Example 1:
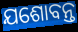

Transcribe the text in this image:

ଯଶୋବନ୍ତ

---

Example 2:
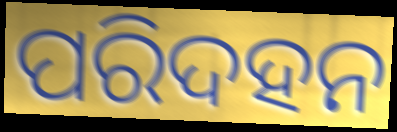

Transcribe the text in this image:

ପରିଦହନ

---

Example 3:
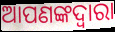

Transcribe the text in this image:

ଆପଣଙ୍କଦ୍ବାରା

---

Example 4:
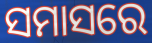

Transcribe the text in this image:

ସମାସରେ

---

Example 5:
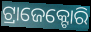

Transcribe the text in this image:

ଟ୍ରାଜେକ୍ଟୋରି